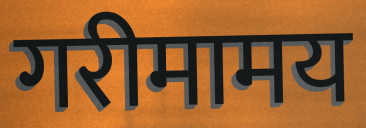
गरीमामय